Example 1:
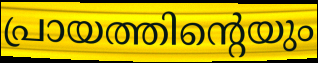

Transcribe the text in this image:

പ്രായത്തിന്റെയും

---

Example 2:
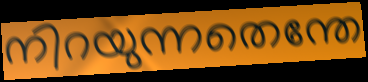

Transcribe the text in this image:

നിറയുന്നതെന്തേ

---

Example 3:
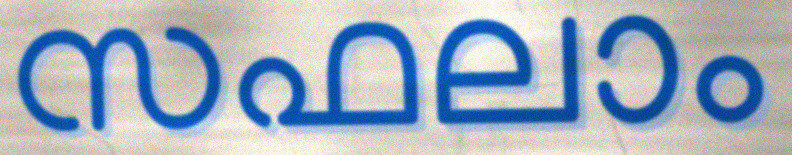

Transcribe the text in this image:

സഫലാം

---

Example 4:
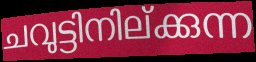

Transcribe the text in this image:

ചവുട്ടിനില്ക്കുന്ന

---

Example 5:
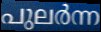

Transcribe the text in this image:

പുലർന്ന